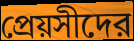
প্রেয়সীদের